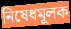
নিষেধমূলক